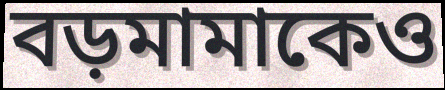
বড়মামাকেও